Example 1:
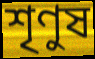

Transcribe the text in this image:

শৃণুষ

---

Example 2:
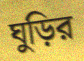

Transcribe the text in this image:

ঘুড়ির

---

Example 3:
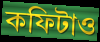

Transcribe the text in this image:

কফিটাও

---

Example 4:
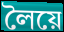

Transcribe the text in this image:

লৈয়ে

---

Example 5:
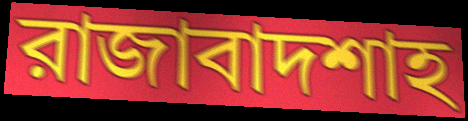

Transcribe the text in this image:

রাজাবাদশাহ